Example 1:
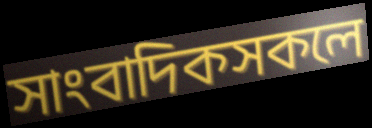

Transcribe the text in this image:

সাংবাদিকসকলে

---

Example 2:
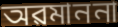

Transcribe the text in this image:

অৱমাননা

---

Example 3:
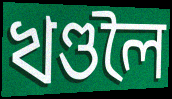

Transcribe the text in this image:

খণ্ডলৈ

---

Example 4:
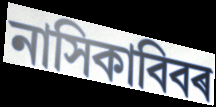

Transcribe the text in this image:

নাসিকাবিবৰ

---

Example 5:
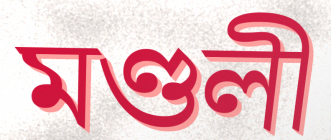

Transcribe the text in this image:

মণ্ডলী